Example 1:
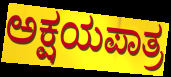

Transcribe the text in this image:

ಅಕ್ಷಯಪಾತ್ರ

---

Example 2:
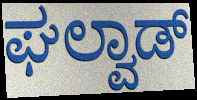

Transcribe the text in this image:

ಘಲ್ವಾಡ್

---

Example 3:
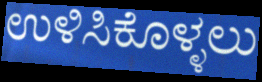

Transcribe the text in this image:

ಉಳಿಸಿಕೊಳ್ಳಲು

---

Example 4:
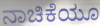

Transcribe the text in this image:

ನಾಚಿಕೆಯೂ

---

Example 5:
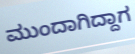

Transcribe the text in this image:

ಮುಂದಾಗಿದ್ದಾಗ